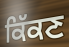
ਕਿੱਕਣ